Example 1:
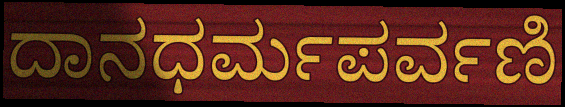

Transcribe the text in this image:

ದಾನಧರ್ಮಪರ್ವಣಿ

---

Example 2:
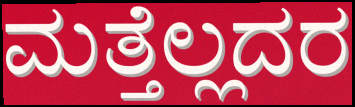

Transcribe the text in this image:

ಮತ್ತೆಲ್ಲದರ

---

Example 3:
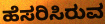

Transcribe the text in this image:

ಹೆಸರಿಸಿರುವ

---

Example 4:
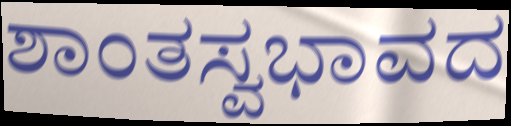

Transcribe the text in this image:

ಶಾಂತಸ್ವಭಾವದ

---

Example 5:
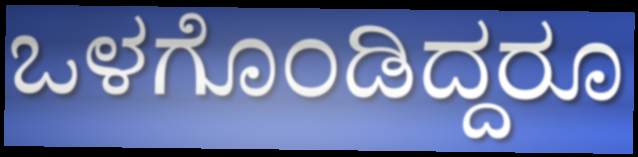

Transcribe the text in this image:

ಒಳಗೊಂಡಿದ್ದರೂ